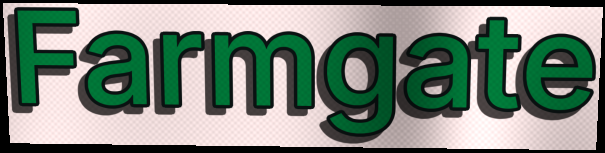
Farmgate